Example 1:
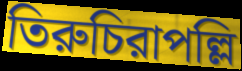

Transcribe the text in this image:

তিরুচিরাপল্লি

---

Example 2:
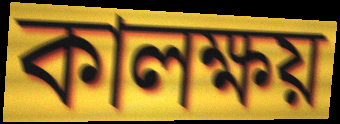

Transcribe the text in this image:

কালক্ষয়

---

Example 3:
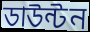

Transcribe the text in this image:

ডাউন্টন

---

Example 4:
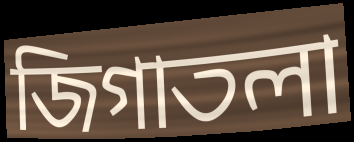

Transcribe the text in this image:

জিগাতলা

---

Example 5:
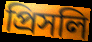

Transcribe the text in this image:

প্রিসলি